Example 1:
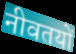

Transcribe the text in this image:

नीवतयों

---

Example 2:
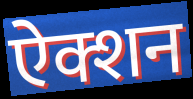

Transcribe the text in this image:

ऐक्‍शन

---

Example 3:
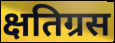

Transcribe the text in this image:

क्षतिग्रस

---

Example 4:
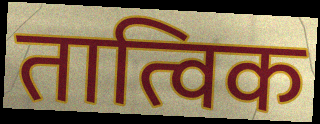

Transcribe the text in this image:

तात्विक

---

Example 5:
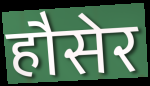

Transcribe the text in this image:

हौसेर